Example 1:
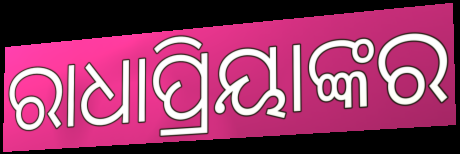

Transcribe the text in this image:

ରାଧାପ୍ରିୟାଙ୍କର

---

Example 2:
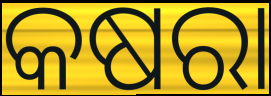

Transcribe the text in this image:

କଷରା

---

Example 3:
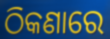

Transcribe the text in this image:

ଠିକଣାରେ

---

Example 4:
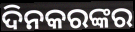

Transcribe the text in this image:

ଦିନକରଙ୍କର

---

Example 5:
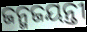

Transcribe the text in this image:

ଜନ୍ମଜୟନ୍ତୀ